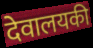
देवालयकी